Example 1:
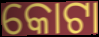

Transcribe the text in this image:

କୋଟା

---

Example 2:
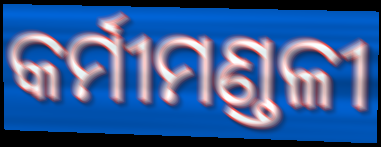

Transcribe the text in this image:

କର୍ମୀମଣ୍ଡଳୀ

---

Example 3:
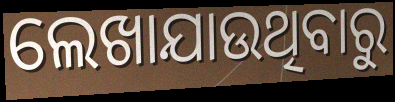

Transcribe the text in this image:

ଲେଖାଯାଉଥିବାରୁ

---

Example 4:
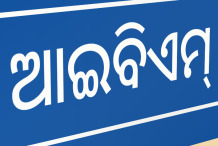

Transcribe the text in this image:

ଆଇବିଏମ୍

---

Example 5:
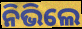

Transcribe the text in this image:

ନିଭିଲେ